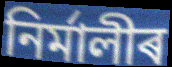
নিৰ্মালীৰ